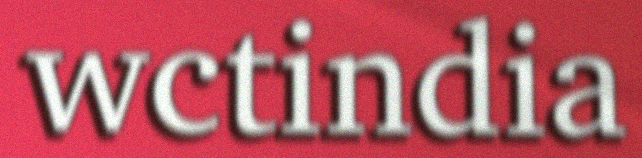
wctindia